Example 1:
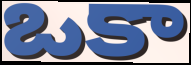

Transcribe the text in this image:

ఒకా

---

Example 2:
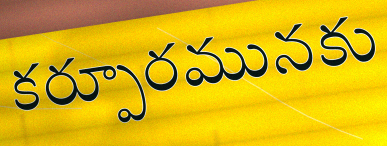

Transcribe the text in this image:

కర్పూరమునకు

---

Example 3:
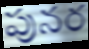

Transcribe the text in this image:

పునర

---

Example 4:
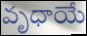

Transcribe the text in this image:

వృధాయే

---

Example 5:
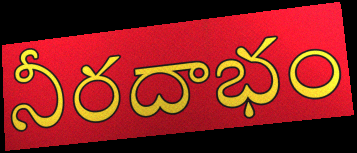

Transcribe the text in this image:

నీరదాభం